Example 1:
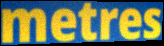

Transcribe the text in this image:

metres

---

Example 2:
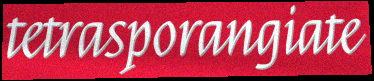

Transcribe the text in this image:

tetrasporangiate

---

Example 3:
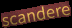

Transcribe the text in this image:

scandere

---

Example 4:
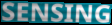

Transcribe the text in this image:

SENSING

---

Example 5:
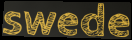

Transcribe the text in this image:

swede